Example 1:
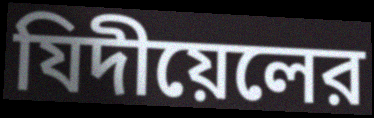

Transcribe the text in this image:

যিদীয়েলের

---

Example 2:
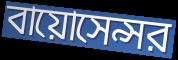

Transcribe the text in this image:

বায়োসেন্সর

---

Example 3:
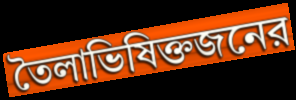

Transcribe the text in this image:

তৈলাভিষিক্তজনের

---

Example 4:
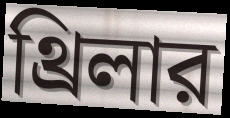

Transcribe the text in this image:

থ্রিলার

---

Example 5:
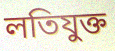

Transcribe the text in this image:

লতিযুক্ত